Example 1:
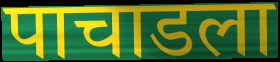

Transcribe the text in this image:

पाचाडला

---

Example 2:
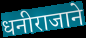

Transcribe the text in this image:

धनीराजाने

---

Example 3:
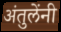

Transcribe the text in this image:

अंतुलेंनी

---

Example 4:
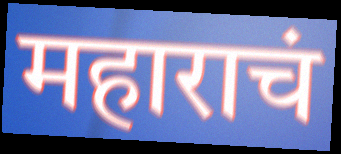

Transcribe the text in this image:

महाराचं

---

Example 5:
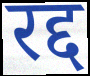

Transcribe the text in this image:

रद्द